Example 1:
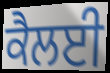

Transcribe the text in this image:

ਕੈਲਈ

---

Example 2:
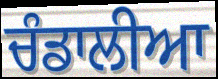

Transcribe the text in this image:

ਚੰਡਾਲੀਆ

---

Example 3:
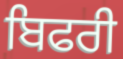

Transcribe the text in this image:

ਬਿਫਰੀ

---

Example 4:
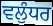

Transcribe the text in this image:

ਵਲੁੰਧਰ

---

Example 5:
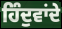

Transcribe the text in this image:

ਹਿੰਦੁਵਾਂਦੇ